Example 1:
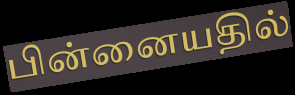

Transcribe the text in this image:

பின்னையதில்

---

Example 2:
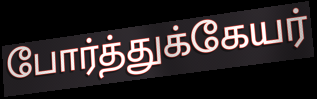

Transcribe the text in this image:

போர்த்துக்கேயர்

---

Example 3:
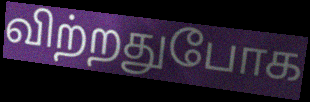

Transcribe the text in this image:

விற்றதுபோக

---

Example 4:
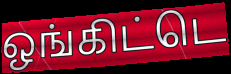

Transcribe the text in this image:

ஒங்கிட்டெ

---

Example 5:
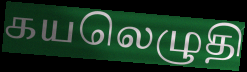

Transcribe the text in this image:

கயலெழுதி